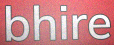
bhire